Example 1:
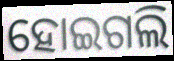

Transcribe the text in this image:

ହୋଇଗଲି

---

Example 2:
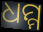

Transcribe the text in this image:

ଧମ୍ମ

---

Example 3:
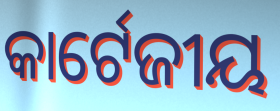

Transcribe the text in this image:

କାର୍ଟେଜୀୟ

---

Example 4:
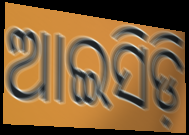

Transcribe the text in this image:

ଆଇସିଡ଼ି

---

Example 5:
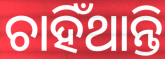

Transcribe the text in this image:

ଚାହିଁଥାନ୍ତି